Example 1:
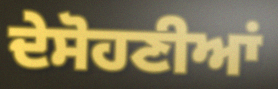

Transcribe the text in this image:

ਦੇਸੋਹਣੀਆਂ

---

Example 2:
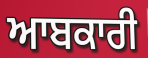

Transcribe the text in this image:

ਆਬਕਾਰੀ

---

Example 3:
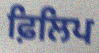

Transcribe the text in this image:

ਫ਼ਿਲਿਪ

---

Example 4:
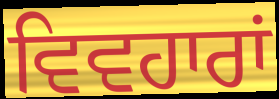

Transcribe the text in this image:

ਵਿਵਹਾਰਾਂ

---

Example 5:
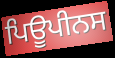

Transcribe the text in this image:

ਪਿਊਪੀਨਸ